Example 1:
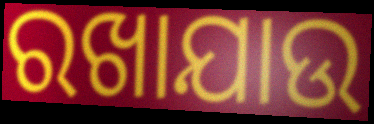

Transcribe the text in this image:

ରଖାଯାଉ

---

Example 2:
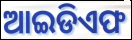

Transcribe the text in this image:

ଆଇଡିଏଫ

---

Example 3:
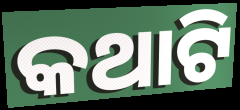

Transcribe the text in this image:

କଥାଟି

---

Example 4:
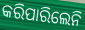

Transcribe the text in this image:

କରିପାରିଲେନି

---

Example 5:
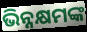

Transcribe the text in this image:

ଭିନ୍ନକ୍ଷମଙ୍କ